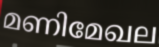
മണിമേഖല